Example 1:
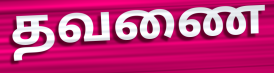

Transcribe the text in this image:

தவணை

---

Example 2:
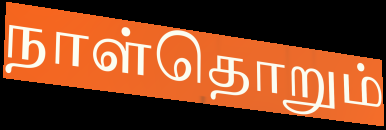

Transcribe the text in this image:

நாள்தொறும்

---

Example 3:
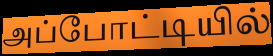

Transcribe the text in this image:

அப்போட்டியில்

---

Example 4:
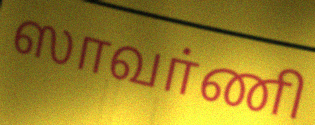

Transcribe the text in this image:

ஸாவர்ணி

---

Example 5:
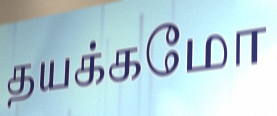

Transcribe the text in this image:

தயக்கமோ